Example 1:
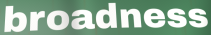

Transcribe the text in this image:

broadness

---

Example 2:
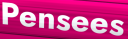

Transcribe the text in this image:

Pensees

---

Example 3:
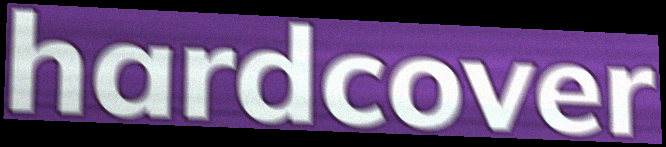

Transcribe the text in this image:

hardcover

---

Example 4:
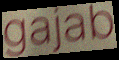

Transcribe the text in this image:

gajab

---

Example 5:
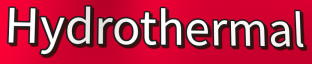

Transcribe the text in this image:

Hydrothermal